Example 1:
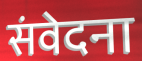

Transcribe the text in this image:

संवेदना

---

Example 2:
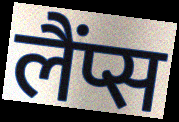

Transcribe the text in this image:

लैंप्स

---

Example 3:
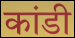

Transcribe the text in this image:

कांडी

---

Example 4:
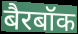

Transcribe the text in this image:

बैरबॉक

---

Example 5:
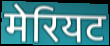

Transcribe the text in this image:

मेरियट